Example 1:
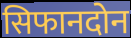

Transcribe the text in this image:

सिफानदोन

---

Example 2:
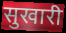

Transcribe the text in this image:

सुखारी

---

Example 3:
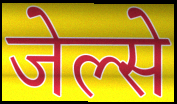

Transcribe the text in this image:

जेल्से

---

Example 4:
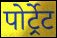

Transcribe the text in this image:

पोर्ट्रेट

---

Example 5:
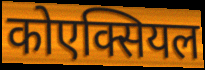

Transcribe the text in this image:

कोएक्सियल